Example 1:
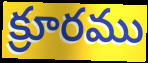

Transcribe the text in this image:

క్రూరము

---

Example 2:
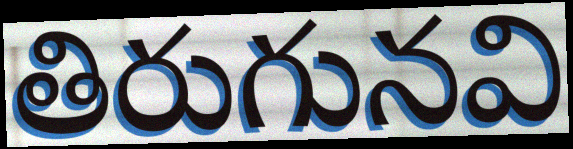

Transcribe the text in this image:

తిరుగునవి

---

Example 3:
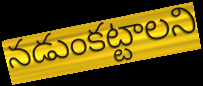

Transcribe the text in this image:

నడుంకట్టాలని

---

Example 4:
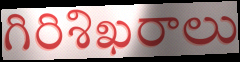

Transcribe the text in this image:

గిరిశిఖరాలు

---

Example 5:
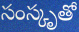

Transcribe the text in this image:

సంస్కృతో